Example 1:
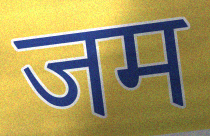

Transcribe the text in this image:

जम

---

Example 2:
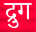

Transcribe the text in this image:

द्रुग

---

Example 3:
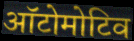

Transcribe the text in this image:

ऑटोमोटिव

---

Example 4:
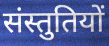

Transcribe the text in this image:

संस्तुतियों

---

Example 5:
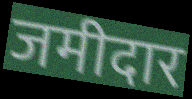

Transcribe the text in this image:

जमीदार